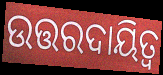
ଉତ୍ତରଦାୟିତ୍ବ